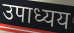
उपाध्यय